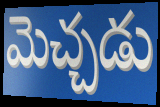
మెచ్చడు